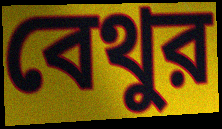
বেথুর